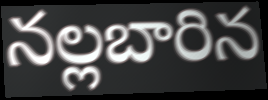
నల్లబారిన